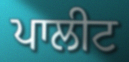
ਪਾਲੀਟ